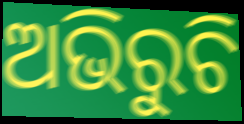
ଅଭିରୁଚି